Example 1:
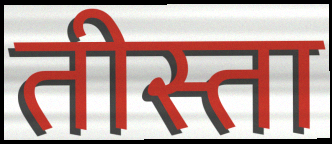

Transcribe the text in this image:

तीस्ता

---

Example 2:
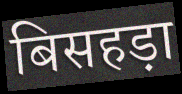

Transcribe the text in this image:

बिसहड़ा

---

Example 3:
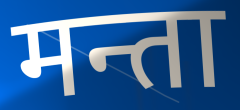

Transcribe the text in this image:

मन्ता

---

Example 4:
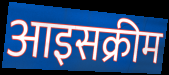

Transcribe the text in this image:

आइसक्रीम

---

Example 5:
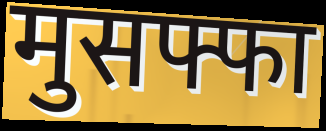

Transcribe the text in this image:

मुसफ्फा